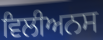
ਵਿਲੀਅਨਸ